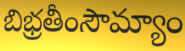
బిభ్రతీంసౌమ్యాం